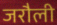
जरौली